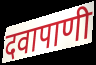
दवापाणी